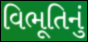
વિભૂતિનું